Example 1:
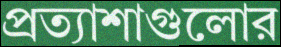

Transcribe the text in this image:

প্রত্যাশাগুলোর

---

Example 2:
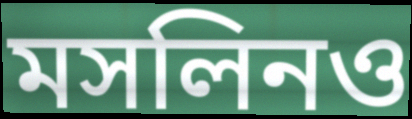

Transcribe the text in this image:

মসলিনও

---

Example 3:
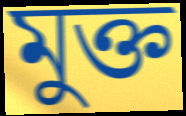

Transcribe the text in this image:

মুক্ত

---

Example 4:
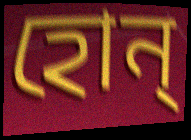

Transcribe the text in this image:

হোন্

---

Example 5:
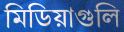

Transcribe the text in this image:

মিডিয়াগুলি